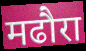
मढौरा